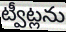
ట్వీట్లను